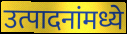
उत्पादनांमध्ये